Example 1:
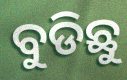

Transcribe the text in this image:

ବୁଡିଛୁ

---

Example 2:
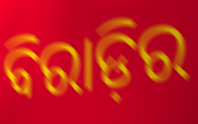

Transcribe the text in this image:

ବିରାଡ଼ିର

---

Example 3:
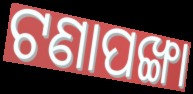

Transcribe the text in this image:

ଟଣାପଙ୍ଖା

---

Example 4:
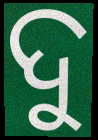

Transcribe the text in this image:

ଦୁ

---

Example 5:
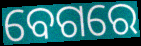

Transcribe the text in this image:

ବେଗରେ